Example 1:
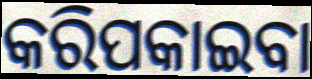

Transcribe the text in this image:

କରିପକାଇବା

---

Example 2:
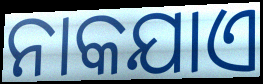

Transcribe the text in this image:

ନାକଯାଏ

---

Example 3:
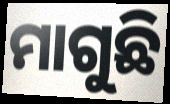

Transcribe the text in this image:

ମାଗୁଛି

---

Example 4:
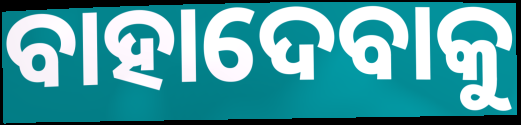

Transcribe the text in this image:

ବାହାଦେବାକୁ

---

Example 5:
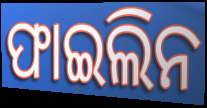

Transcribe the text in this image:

ଫାଇଲିନ